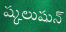
ష్కలుషున్